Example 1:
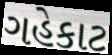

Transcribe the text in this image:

ગહેકાટ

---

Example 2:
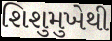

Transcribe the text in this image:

શિશુમુખેથી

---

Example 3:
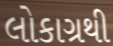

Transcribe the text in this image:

લોકાગ્રથી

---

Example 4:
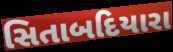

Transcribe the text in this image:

સિતાબદિયારા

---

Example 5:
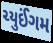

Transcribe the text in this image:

ચ્યુઈંગમ